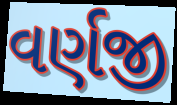
વર્ણજી